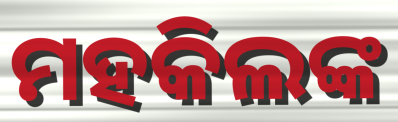
ମହକିଲଙ୍କ